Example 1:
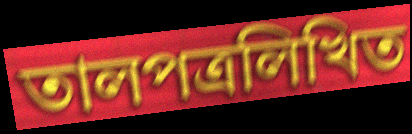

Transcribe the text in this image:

তালপত্রলিখিত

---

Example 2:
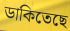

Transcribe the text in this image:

ডাকিতেছে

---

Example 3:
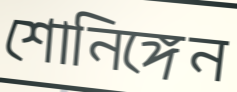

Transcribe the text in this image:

শোনিঙ্গেন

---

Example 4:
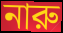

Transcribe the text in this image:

নারু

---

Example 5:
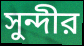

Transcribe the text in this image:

সুন্দীর